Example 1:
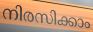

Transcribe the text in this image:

നിരസിക്കാം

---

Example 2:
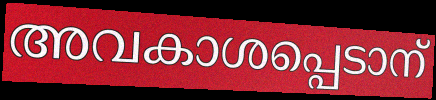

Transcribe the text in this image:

അവകാശപ്പെടാന്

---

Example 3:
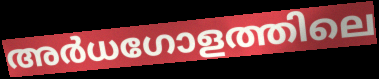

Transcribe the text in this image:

അർധഗോളത്തിലെ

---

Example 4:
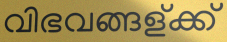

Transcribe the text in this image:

വിഭവങ്ങള്ക്ക്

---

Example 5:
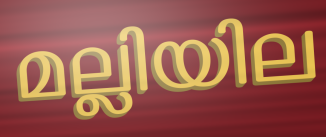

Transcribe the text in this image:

മല്ലിയില